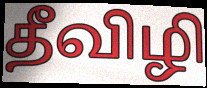
தீவிழி